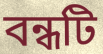
বন্ধটি